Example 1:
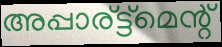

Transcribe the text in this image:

അപ്പാര്ട്ട്മെന്റ്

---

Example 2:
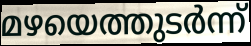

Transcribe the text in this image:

മഴയെത്തുടർന്ന്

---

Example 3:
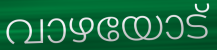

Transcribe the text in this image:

വാഴയോട്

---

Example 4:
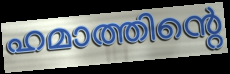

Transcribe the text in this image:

ഹമാത്തിന്റെ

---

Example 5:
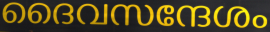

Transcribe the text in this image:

ദൈവസന്ദേശം